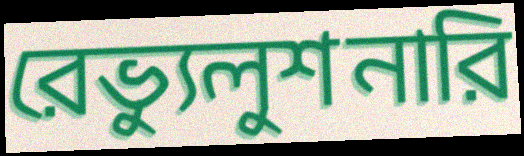
রেভ্যুলুশনারি